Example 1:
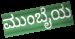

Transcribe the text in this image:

ಮುಂಬೈಯ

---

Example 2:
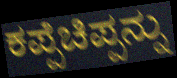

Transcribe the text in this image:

ಕಪ್ಪೆಚಿಪ್ಪನ್ನು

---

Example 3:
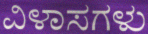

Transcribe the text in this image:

ವಿಳಾಸಗಳು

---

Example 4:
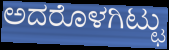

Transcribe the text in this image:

ಅದರೊಳಗಿಟ್ಟು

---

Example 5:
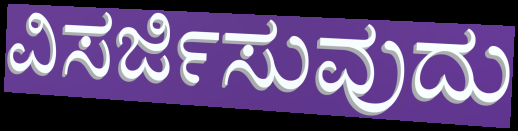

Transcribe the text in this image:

ವಿಸರ್ಜಿಸುವುದು